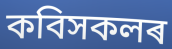
কবিসকলৰ